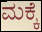
ಮಕ್ಕೆ